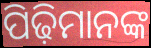
ପିଢ଼ିମାନଙ୍କ